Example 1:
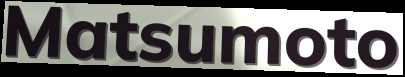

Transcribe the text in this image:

Matsumoto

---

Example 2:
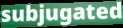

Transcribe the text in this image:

subjugated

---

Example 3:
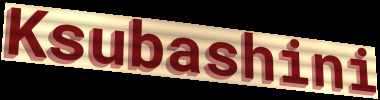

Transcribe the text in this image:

Ksubashini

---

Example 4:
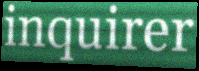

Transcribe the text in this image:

inquirer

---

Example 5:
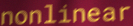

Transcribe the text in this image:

nonlinear